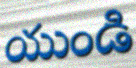
యుండి